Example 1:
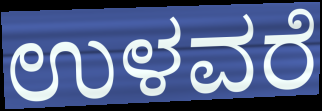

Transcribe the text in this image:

ಉಳವರೆ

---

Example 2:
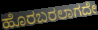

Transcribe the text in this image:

ಹೊರಬರಲಾಗದೇ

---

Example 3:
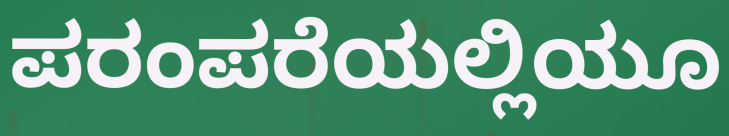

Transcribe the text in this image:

ಪರಂಪರೆಯಲ್ಲಿಯೂ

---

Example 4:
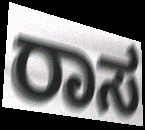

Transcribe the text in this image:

ರಾಸ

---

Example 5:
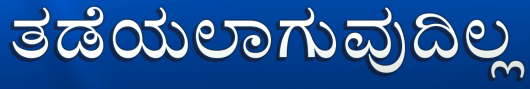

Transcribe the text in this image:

ತಡೆಯಲಾಗುವುದಿಲ್ಲ